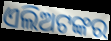
ଏଲିଅଟଙ୍କର